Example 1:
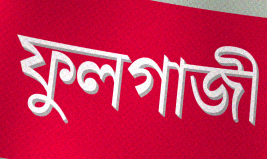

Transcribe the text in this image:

ফুলগাজী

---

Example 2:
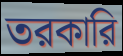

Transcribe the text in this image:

তরকারি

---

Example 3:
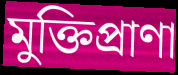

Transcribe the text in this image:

মুক্তিপ্রাণা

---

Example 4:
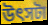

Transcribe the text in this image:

উৎসটা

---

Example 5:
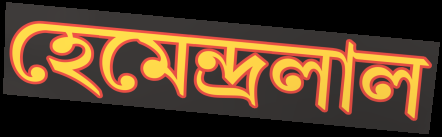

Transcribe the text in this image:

হেমেন্দ্রলাল